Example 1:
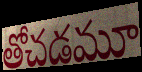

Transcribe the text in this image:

తోచడమూ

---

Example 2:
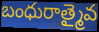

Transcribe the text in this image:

బంధురాత్మైవ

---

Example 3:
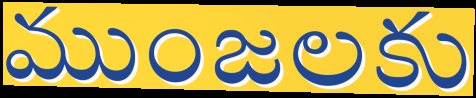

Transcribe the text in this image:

ముంజలకు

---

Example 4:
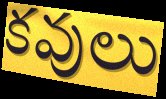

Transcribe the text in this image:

కవులు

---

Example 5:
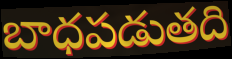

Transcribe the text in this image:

బాధపడుతది